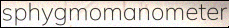
sphygmomanometer